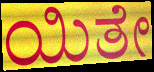
ಯಿತೇ